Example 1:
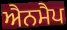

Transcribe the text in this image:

ਐਨਮੈਪ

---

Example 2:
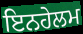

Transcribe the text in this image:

ਇਨਹੇਲਮ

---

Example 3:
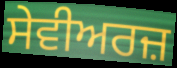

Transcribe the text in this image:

ਸੇਵੀਅਰਜ਼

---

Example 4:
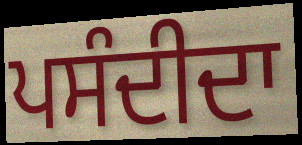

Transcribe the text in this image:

ਪਸੰਦੀਦਾ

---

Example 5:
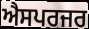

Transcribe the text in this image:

ਐਸਪਰਜਰ